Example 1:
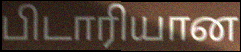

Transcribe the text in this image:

பிடாரியான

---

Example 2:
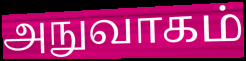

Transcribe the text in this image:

அநுவாகம்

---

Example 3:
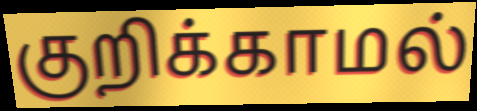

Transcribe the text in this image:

குறிக்காமல்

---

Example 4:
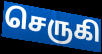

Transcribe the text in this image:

செருகி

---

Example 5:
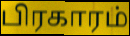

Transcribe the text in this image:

பிரகாரம்